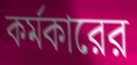
কর্মকারের